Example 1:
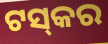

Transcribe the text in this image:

ଟସ୍‍କର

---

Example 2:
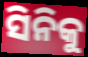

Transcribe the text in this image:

ସିନିକୁ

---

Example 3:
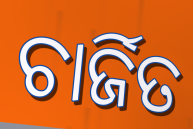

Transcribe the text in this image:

ଚାର୍ଜିତ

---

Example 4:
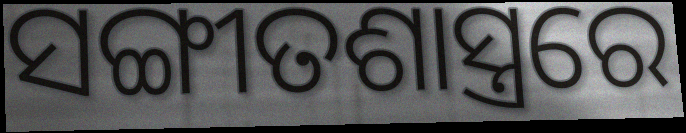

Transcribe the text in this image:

ସଙ୍ଗୀତଶାସ୍ତ୍ରରେ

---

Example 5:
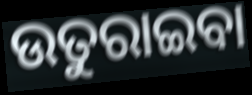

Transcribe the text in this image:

ଉତୁରାଇବା